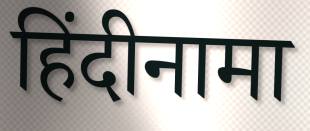
हिंदीनामा